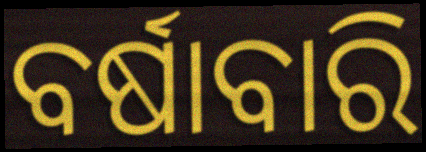
ବର୍ଷାବାରି